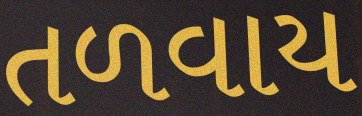
તળવાય